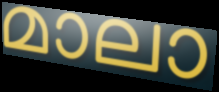
മാലാ